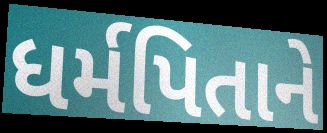
ધર્મપિતાને